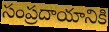
సంప్రదాయానికి